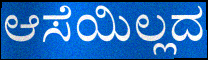
ಆಸೆಯಿಲ್ಲದ